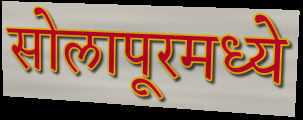
सोलापूरमध्ये